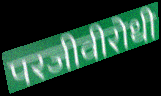
परजीवीरोधी